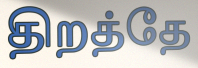
திறத்தே